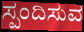
ಸ್ಪಂದಿಸುವ